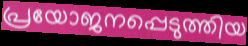
പ്രയോജനപ്പെടുത്തിയ